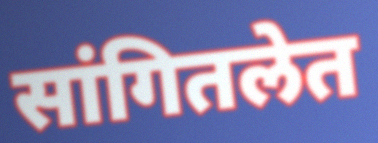
सांगितलेत